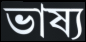
ভাষ্য